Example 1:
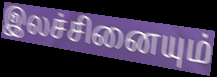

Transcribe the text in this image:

இலச்சினையும்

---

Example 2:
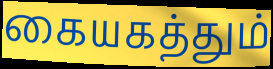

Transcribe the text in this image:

கையகத்தும்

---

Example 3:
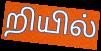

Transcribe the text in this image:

றியில்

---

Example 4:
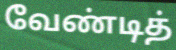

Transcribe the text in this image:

வேண்டித்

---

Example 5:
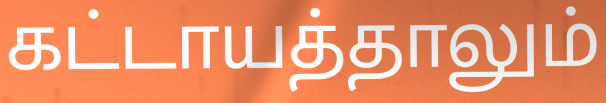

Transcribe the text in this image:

கட்டாயத்தாலும்